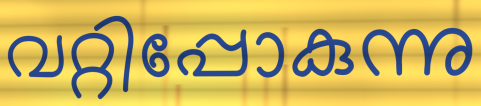
വറ്റിപ്പോകുന്നു